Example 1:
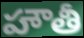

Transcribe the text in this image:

హౌతీ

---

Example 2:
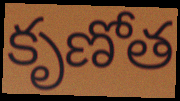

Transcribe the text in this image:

కృణోత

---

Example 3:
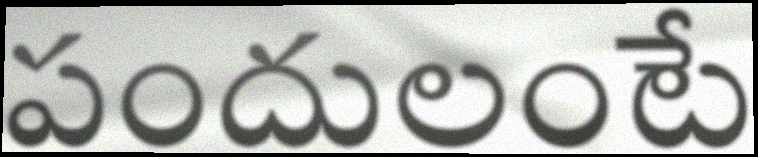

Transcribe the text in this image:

పందులంటే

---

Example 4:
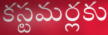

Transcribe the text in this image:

కస్టమర్లకు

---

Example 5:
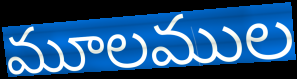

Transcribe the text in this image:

మూలముల